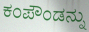
ಕಂಪೌಂಡನ್ನು